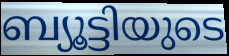
ബ്യൂട്ടിയുടെ